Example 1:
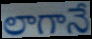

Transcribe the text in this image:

లాగానే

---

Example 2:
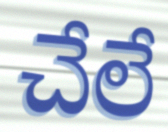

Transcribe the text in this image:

చేలే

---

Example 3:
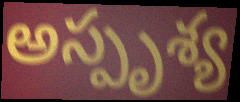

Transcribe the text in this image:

అస్పృశ్య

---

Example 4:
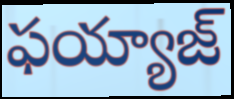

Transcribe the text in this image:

ఫయ్యాజ్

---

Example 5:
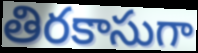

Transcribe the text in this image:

తిరకాసుగా